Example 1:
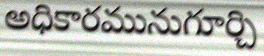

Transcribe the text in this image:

అధికారమునుగూర్చి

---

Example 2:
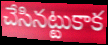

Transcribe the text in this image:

చేసినట్టుకాక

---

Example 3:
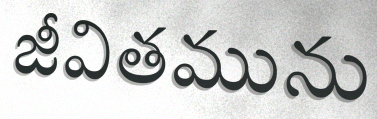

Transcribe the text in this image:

జీవితమును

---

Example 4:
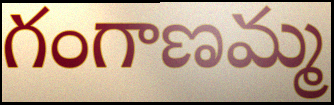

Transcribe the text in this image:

గంగాణమ్మ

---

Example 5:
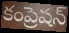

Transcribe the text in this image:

కంప్రెషన్